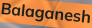
Balaganesh